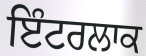
ਇੰਟਰਲਾਕ